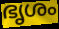
ഭൃശം